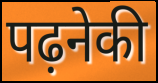
पढ़नेकी